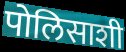
पोलिसाशी